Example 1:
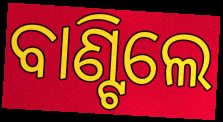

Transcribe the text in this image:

ବାଣ୍ଟିଲେ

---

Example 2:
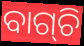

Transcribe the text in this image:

ବାଗ୍‌ଚି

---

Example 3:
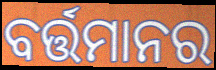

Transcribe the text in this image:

ବର୍ତ୍ତମାନର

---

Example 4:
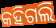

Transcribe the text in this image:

କହିଗଲି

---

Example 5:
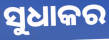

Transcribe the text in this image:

ସୁଧାକର